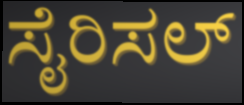
ಸೈರಿಸಲ್